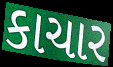
કાચાર